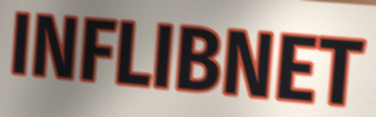
INFLIBNET